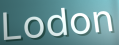
Lodon